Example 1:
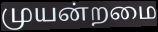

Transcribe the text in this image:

முயன்றமை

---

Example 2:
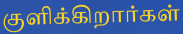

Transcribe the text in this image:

குளிக்கிறார்கள்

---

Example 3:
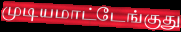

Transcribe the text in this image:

முடியமாட்டேங்குது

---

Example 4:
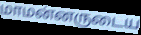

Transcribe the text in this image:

மாமன்னருடைய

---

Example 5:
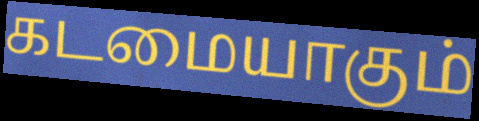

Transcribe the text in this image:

கடமையாகும்